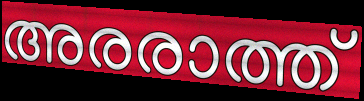
അരരാത്ത്